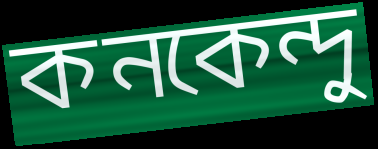
কনকেন্দু